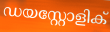
ഡയസ്റ്റോളിക്